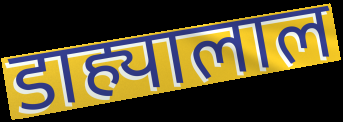
डाह्यालाल